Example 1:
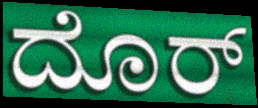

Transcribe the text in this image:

ದೊರ್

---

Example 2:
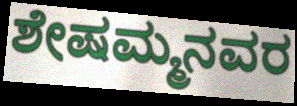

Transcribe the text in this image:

ಶೇಷಮ್ಮನವರ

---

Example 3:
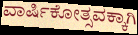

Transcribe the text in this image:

ವಾರ್ಷಿಕೋತ್ಸವಕ್ಕಾಗಿ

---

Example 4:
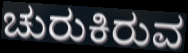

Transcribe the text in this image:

ಚುರುಕಿರುವ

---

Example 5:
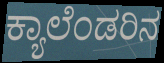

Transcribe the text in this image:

ಕ್ಯಾಲೆಂಡರಿನ